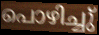
പൊഴിച്ചു്